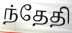
ந்தேதி